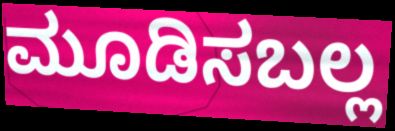
ಮೂಡಿಸಬಲ್ಲ